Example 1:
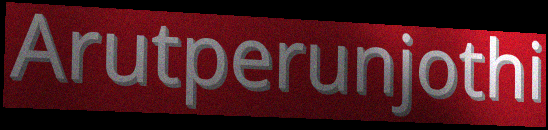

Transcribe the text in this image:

Arutperunjothi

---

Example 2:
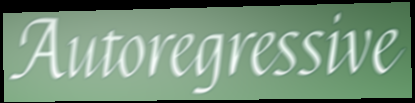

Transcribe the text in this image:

Autoregressive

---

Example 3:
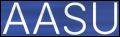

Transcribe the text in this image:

AASU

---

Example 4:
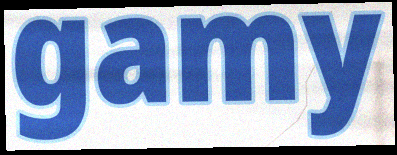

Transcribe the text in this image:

gamy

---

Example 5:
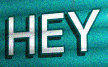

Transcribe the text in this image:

HEY